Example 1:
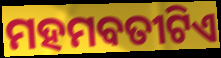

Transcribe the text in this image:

ମହମବତୀଟିଏ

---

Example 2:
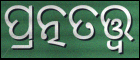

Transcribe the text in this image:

ପ୍ରତ୍ନତତ୍ତ୍ୱ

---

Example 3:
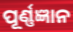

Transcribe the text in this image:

ପୂର୍ଣ୍ଣଜ୍ଞାନ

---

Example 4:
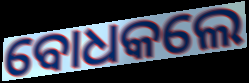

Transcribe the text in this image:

ବୋଧକଲେ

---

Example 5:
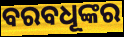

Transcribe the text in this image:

ବରବଧୂଙ୍କର